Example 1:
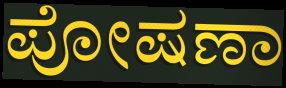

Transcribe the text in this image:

ಪೋಷಣಾ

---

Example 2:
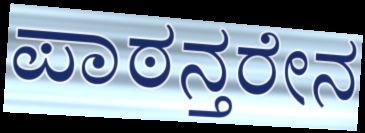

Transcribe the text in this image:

ಪಾಠನ್ತರೇನ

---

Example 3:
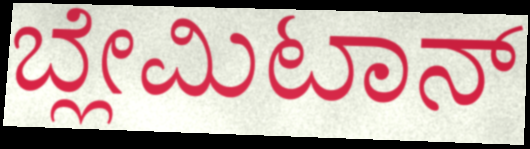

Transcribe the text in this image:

ಬ್ಲೇಮಿಟಾನ್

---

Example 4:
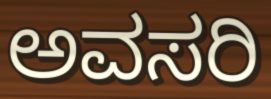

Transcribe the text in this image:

ಅವಸರಿ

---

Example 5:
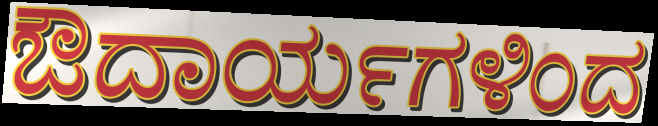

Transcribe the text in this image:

ಔದಾರ್ಯಗಳಿಂದ